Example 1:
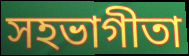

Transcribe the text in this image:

সহভাগীতা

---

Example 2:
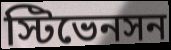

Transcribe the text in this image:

স্টিভেনসন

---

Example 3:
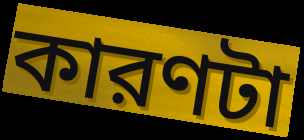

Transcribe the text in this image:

কারণটা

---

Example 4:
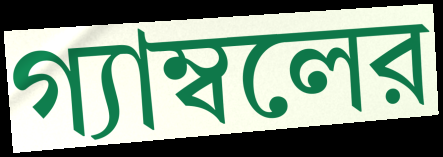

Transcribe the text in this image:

গ্যাম্বলের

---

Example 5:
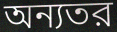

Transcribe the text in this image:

অন্যতর